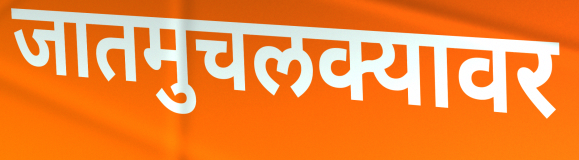
जातमुचलक्यावर